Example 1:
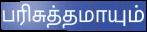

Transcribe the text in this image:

பரிசுத்தமாயும்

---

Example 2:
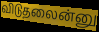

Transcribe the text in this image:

விடுதலைன்னு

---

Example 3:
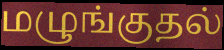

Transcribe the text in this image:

மழுங்குதல்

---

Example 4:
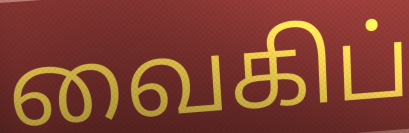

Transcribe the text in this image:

வைகிப்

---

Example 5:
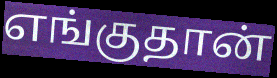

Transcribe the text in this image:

எங்குதான்